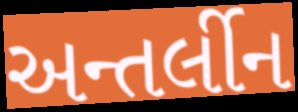
અન્તર્લીન